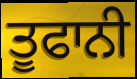
ਤੂਫਾਨੀ